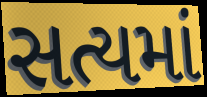
સત્યમાં